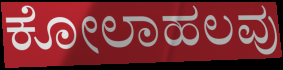
ಕೋಲಾಹಲವು